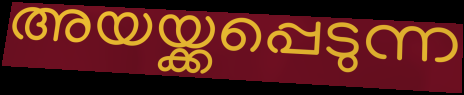
അയയ്ക്കപ്പെടുന്ന